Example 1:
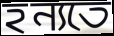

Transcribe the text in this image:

হন্যতে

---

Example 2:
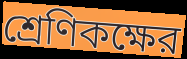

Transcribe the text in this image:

শ্রেণিকক্ষের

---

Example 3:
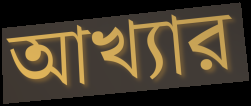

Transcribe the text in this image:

আখ্যার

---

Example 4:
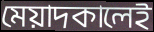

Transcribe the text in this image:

মেয়াদকালেই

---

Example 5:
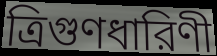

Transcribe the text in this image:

ত্রিগুণধারিণী